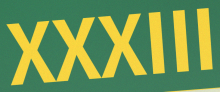
XXXIII